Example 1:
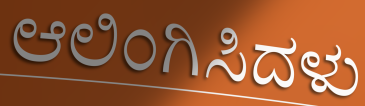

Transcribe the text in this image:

ಆಲಿಂಗಿಸಿದಳು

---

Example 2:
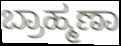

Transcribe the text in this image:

ಬ್ರಾಹ್ಮಣಾ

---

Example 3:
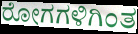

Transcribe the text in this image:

ರೋಗಗಳಿಗಿಂತ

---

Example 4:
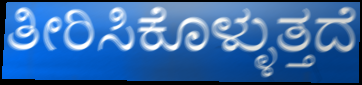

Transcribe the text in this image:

ತೀರಿಸಿಕೊಳ್ಳುತ್ತದೆ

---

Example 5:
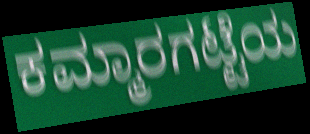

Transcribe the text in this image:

ಕಮ್ಮಾರಗಟ್ಟೆಯ